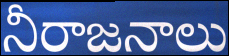
నీరాజనాలు